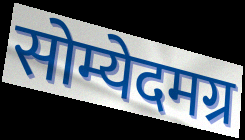
सोम्येदमग्र